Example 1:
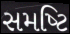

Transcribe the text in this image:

સમષ્‍ટિ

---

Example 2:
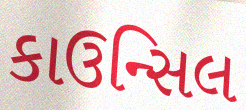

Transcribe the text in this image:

કાઉન્‍સિલ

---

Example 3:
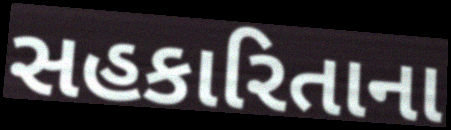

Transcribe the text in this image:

સહકારિતાના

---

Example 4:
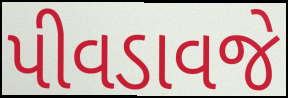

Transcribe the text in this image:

પીવડાવજે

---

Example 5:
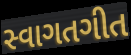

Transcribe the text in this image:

સ્વાગતગીત